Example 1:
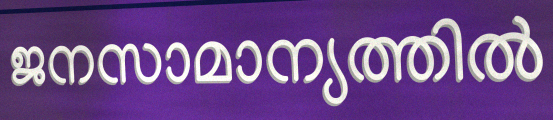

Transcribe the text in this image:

ജനസാമാന്യത്തിൽ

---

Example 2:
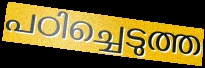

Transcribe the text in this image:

പഠിച്ചെടുത്ത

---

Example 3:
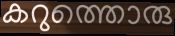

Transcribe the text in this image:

കറുത്തൊരു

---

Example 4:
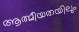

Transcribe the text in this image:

ആത്മീയതയിലും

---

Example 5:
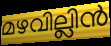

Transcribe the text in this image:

മഴവില്ലിൻ